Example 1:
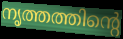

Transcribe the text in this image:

നൃത്തത്തിന്റെ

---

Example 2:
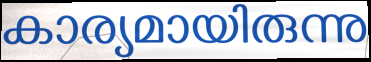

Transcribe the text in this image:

കാര്യമായിരുന്നു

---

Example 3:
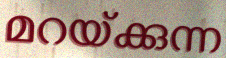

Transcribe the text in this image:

മറയ്‌ക്കുന്ന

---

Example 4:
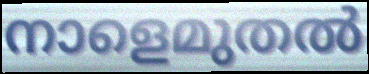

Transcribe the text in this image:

നാളെമുതൽ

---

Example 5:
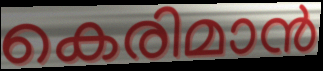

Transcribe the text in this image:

കെരിമാൻ